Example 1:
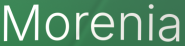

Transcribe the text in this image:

Morenia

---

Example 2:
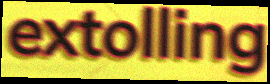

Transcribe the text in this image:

extolling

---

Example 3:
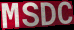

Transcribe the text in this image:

MSDC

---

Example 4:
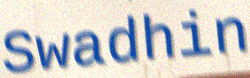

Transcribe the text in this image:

Swadhin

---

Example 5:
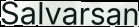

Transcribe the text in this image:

Salvarsan